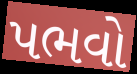
પભવો